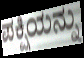
ಪಕ್ಷಿಯನ್ನು